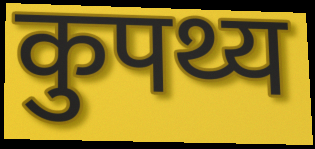
कुपथ्य